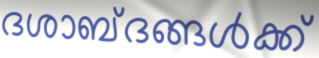
ദശാബ്ദങ്ങൾക്ക്